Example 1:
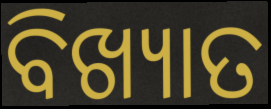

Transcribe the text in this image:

ବିଖ୍ୟାତ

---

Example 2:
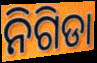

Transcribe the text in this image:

ନିଗିଡା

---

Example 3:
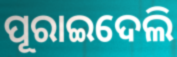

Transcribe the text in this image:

ପୂରାଇଦେଲି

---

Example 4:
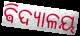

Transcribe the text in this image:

ଵିଦ୍ୟାଳୟ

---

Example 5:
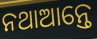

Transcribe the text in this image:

ନଥାଆନ୍ତେ